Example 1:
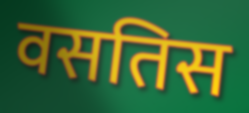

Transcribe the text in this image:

वसतिस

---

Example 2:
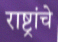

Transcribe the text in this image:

राष्ट्रांचे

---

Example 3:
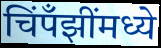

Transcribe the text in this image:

चिंपँझींमध्ये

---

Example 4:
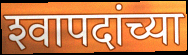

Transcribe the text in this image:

श्‍वापदांच्या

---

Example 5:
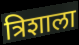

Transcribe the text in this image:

त्रिशाला